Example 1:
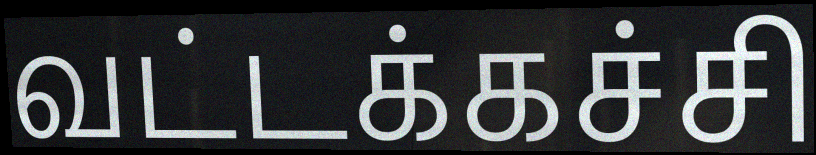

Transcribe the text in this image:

வட்டக்கச்சி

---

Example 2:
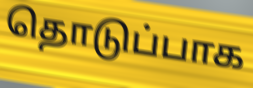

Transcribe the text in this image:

தொடுப்பாக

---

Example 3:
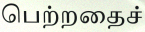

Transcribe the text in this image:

பெற்றதைச்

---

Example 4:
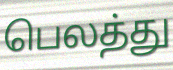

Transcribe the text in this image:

பெலத்து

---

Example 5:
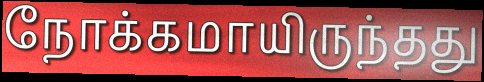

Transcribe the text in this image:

நோக்கமாயிருந்தது